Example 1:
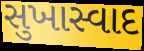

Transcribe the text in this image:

સુખાસ્વાદ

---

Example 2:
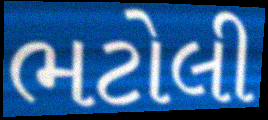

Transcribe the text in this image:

ભટોલી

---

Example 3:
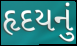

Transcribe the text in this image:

હૃદયનું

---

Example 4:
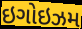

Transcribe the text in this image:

ઇગોઇઝમ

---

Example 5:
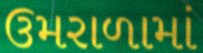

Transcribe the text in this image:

ઉમરાળામાં